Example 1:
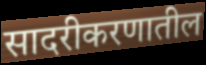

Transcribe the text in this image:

सादरीकरणातील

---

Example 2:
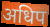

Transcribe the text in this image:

अधिप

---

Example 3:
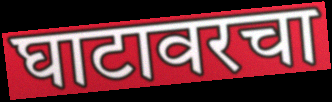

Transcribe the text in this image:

घाटावरचा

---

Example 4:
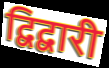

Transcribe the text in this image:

द्विद्वारी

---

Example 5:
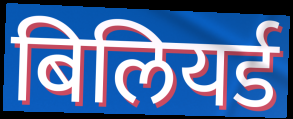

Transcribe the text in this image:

बिलियर्ड